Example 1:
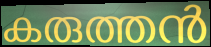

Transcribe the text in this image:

കരുത്തൻ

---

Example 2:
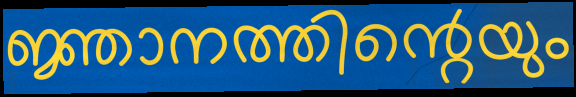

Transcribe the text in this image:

ജ്ഞാനത്തിന്റെയും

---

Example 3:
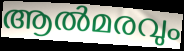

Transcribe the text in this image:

ആൽമരവും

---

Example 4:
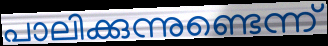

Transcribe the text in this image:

പാലിക്കുന്നുണ്ടെന്ന്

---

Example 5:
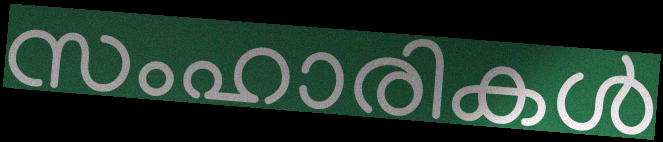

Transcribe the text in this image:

സംഹാരികൾ